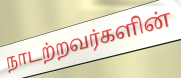
நாடற்றவர்களின்